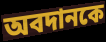
অবদানকে